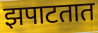
झपाटतात